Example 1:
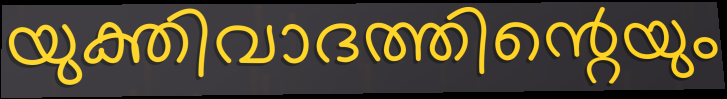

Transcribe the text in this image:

യുക്തിവാദത്തിന്റെയും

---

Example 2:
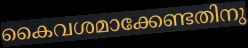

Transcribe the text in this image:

കൈവശമാക്കേണ്ടതിനു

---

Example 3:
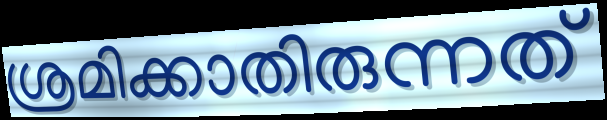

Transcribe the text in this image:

ശ്രമിക്കാതിരുന്നത്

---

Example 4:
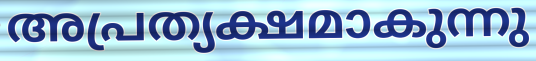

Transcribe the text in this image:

അപ്രത്യക്ഷമാകുന്നു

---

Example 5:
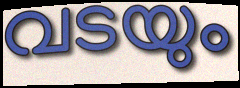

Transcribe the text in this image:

വടയും